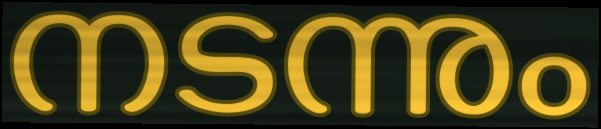
നടന്നും